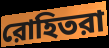
রোহিতরা